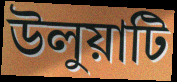
উলুয়াটি